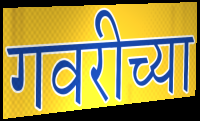
गवरीच्या